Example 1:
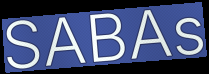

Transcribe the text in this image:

SABAs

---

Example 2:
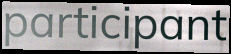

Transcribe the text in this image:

participant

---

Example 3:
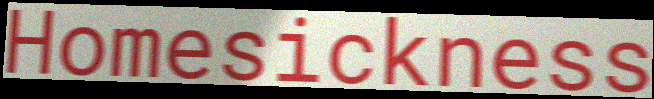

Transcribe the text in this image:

Homesickness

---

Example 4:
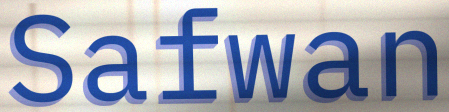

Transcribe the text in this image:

Safwan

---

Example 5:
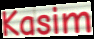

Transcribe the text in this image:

Kasim